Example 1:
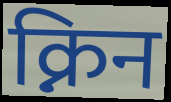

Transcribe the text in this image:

क्निन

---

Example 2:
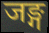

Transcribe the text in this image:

जङ्ग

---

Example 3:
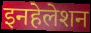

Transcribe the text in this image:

इनहेलेशन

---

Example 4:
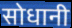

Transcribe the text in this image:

सोधानी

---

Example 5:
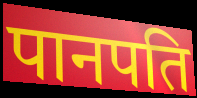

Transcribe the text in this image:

पानपति